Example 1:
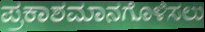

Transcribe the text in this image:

ಪ್ರಕಾಶಮಾನಗೊಳಿಸಲು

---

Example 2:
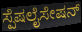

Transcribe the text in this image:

ಸ್ಪೆಷಲೈಸೇಷನ್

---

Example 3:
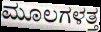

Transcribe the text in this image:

ಮೂಲಗಳತ್ತ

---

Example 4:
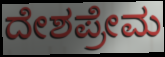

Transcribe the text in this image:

ದೇಶಪ್ರೇಮ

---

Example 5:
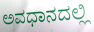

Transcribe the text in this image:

ಅವಧಾನದಲ್ಲಿ